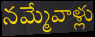
నమ్మేవాళ్లు